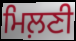
ਮਿਲ਼ਣੀ